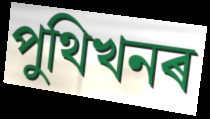
পুথিখনৰ